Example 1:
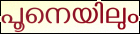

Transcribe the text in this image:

പൂനെയിലും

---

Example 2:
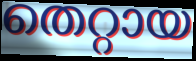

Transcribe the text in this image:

തെറ്റായ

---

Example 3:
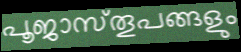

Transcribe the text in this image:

പൂജാസ്‌തൂപങ്ങളും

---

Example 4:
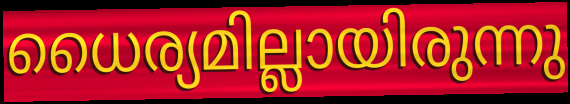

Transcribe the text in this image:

ധൈര്യമില്ലായിരുന്നു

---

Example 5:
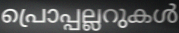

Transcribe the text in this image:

പ്രൊപ്പല്ലറുകൾ